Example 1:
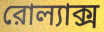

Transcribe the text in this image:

রোল্যাক্স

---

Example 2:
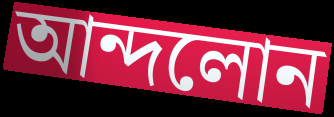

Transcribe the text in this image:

আন্দলোন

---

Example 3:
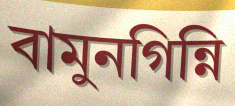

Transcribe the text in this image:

বামুনগিন্নি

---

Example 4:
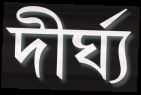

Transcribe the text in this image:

দীর্ঘ্য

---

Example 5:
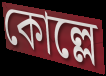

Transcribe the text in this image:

কোল্লে